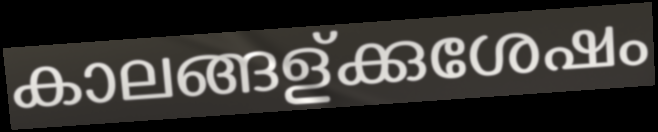
കാലങ്ങള്ക്കുശേഷം